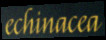
echinacea